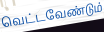
வெட்டவேண்டும்